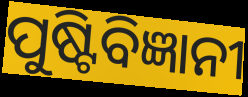
ପୁଷ୍ଟିବିଜ୍ଞାନୀ